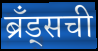
ब्रॅंड्सची